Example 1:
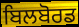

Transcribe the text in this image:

ਬਿਲਬੋਰਡ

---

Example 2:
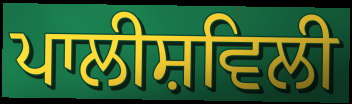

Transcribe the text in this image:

ਪਾਲੀਸ਼ਵਿਲੀ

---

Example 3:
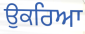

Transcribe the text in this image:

ਉਕਰਿਆ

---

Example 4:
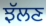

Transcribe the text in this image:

ਝੱਲਣ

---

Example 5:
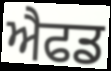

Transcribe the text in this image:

ਐਫਡ